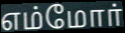
எம்மோர்